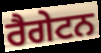
ਰੈਗੇਟਨ